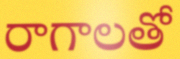
రాగాలతో